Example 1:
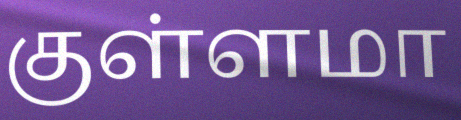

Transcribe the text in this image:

குள்ளமா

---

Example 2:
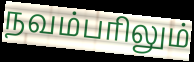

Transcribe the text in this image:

நவம்பரிலும்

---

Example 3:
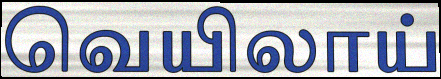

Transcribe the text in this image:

வெயிலாய்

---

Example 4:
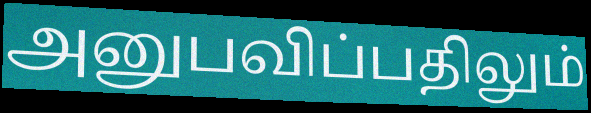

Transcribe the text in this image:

அனுபவிப்பதிலும்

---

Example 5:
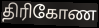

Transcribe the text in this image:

திரிகோண